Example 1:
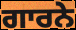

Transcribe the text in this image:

ਗਾਰਨੇ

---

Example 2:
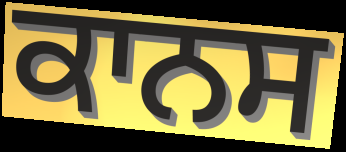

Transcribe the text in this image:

ਕਾਨਸ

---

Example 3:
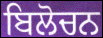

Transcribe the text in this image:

ਬਿਲੋਚਨ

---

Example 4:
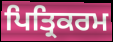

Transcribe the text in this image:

ਪਿਤ੍ਰਿਕਰਮ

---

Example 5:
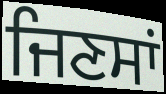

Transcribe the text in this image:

ਜਿਣਸਾਂ